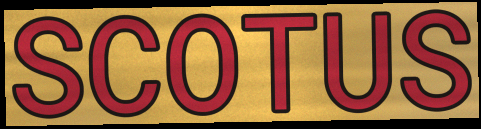
SCOTUS